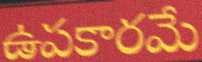
ఉపకారమే